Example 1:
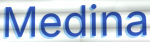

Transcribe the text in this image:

Medina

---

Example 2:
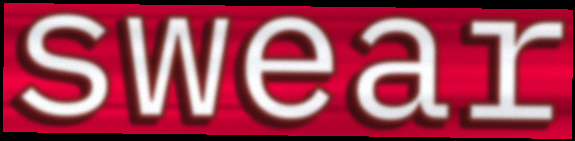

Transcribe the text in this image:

swear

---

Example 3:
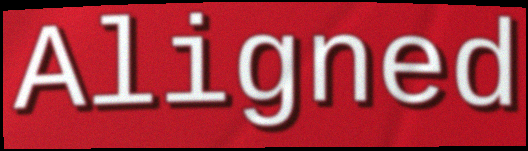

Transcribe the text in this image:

Aligned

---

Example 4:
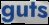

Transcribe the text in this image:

guts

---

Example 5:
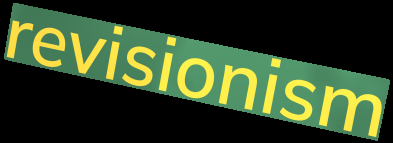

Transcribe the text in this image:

revisionism